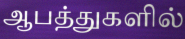
ஆபத்துகளில்